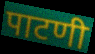
पाटणी